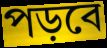
পড়বে